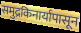
समुद्रकिनार्यापासून